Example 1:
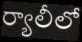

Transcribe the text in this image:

ర్యాలీలో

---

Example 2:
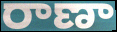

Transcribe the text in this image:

రాణా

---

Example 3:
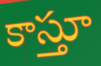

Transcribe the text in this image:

కాస్తూ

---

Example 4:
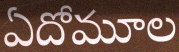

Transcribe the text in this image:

ఏదోమూల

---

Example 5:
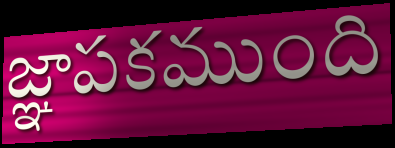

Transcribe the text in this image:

జ్ఞాపకముంది